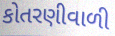
કોતરણીવાળી